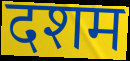
दशम